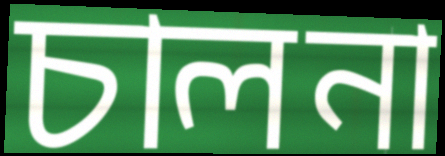
চালনা